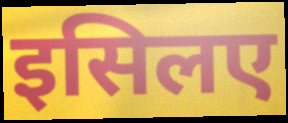
इसिलए